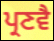
ਪ੍ਰਣਵੈ